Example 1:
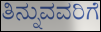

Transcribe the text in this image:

ತಿನ್ನುವವರಿಗೆ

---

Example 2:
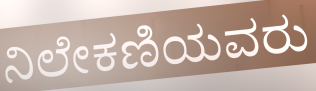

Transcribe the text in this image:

ನಿಲೇಕಣಿಯವರು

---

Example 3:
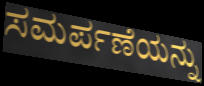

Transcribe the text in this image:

ಸಮರ್ಪಣೆಯನ್ನು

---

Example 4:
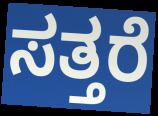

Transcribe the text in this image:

ಸತ್ತರೆ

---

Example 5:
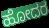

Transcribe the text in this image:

ಹೋದರ